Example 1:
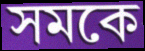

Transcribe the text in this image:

সমকে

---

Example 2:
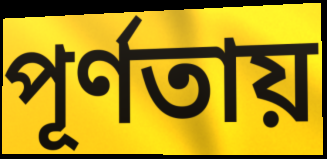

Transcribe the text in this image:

পূর্ণতায়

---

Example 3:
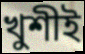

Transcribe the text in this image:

খুশীই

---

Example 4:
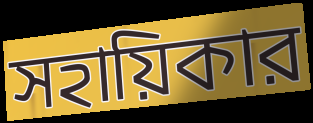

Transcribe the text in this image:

সহায়িকার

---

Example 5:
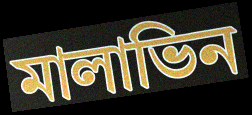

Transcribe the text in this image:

মালাভিন